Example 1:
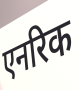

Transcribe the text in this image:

एनरिक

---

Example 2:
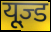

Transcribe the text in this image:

यूज़्ड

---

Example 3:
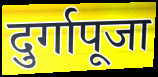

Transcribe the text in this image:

दुर्गापूजा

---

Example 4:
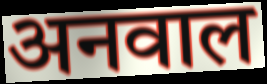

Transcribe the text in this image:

अनवाल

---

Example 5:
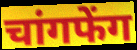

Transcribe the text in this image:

चांगफेंग